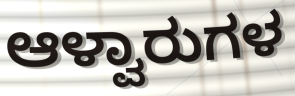
ಆಳ್ವಾರುಗಳ